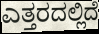
ಎತ್ತರದಲ್ಲಿದೆ